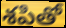
శపితో